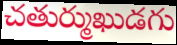
చతుర్ముఖుడగు